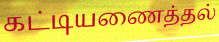
கட்டியணைத்தல்